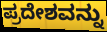
ಪ್ರದೇಶವನ್ನು